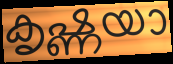
കൃഷ്ണയാ